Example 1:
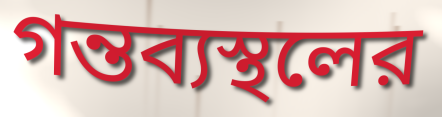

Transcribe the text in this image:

গন্তব্যস্থলের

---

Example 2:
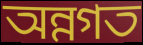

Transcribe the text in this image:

অন্নগত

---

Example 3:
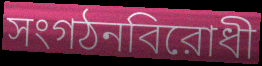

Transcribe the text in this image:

সংগঠনবিরোধী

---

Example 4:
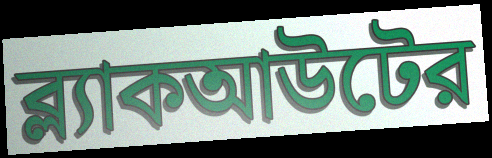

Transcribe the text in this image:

ব্ল্যাকআউটের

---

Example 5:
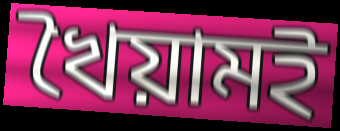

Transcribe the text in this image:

খৈয়ামই